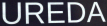
UREDA